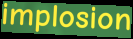
implosion